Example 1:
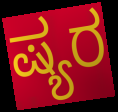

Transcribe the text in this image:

ಷ್ಯರ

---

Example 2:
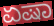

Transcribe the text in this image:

ಏಷಾ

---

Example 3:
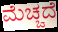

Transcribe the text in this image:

ಮೆಚ್ಚದೆ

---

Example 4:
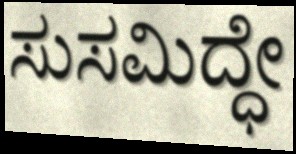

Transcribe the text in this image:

ಸುಸಮಿದ್ಧೇ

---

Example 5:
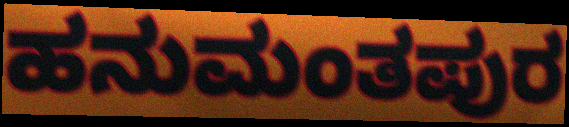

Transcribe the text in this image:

ಹನುಮಂತಪುರ